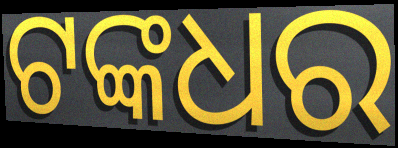
ଟଙ୍କଧର